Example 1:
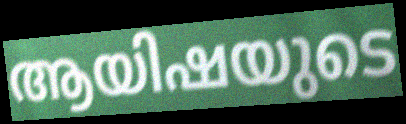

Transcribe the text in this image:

ആയിഷയുടെ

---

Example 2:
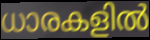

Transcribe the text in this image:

ധാരകളിൽ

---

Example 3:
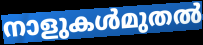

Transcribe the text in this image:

നാളുകൾമുതൽ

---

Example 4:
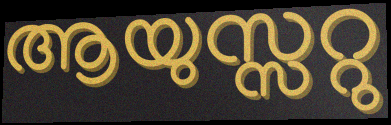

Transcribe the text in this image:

ആയുസ്സറ്റു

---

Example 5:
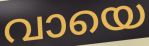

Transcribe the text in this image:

വായെ